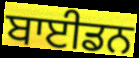
ਬਾਈਡਨ